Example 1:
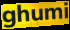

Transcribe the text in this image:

ghumi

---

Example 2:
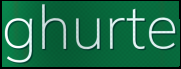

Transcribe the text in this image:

ghurte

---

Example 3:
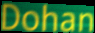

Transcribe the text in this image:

Dohan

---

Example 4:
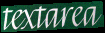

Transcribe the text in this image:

textarea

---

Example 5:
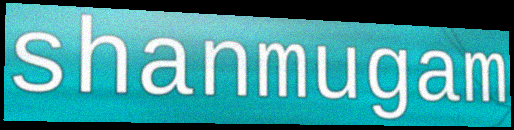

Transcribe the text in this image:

shanmugam